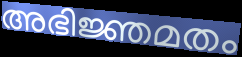
അഭിജ്ഞമതം